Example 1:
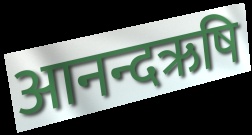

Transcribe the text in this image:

आनन्दऋषि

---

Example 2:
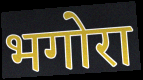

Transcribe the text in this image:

भगोरा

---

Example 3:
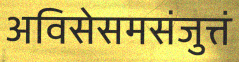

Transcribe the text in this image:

अविसेसमसंजुत्तं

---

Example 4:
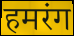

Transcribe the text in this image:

हमरंग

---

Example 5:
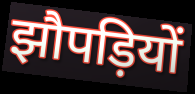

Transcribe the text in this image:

झौपड़ियों